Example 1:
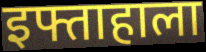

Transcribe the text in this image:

इफ्ताहाला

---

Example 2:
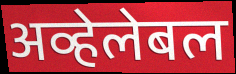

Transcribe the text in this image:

अव्हेलेबल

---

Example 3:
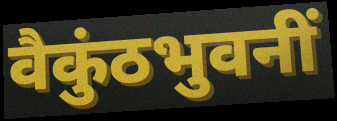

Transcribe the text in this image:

वैकुंठभुवनीं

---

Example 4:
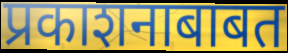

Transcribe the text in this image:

प्रकाशनाबाबत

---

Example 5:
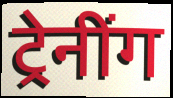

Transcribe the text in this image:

ट्रेनींग